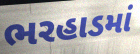
ભરહાડમાં